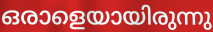
ഒരാളെയായിരുന്നു